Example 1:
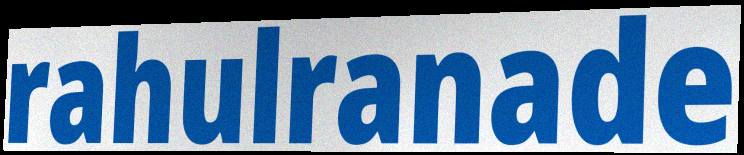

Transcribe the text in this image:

rahulranade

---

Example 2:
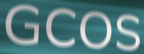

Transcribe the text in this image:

GCOS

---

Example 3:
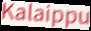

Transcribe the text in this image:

Kalaippu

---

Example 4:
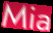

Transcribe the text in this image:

Mia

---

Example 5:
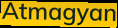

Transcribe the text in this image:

Atmagyan